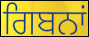
ਗਿਬਨਾਂ